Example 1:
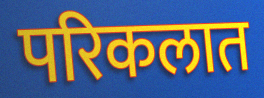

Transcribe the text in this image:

परिकलात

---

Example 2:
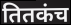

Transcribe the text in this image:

तितकंच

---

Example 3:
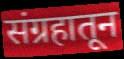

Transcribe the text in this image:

संग्रहातून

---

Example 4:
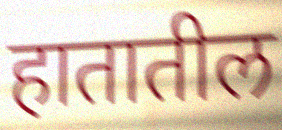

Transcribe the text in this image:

हातातील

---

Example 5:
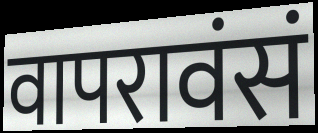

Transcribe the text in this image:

वापरावंसं